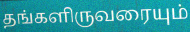
தங்களிருவரையும்